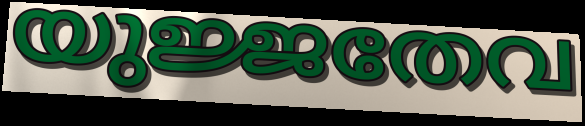
യുജ്ജതേവ